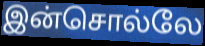
இன்சொல்லே